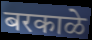
बरकाळे